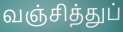
வஞ்சித்துப்